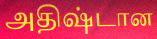
அதிஷ்டான